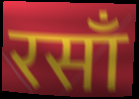
रसाँ